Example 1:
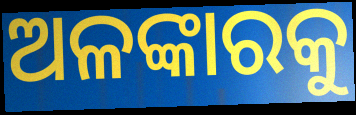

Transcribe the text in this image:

ଅଳଙ୍କାରକୁ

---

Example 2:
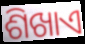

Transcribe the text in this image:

ଶିଖାଏ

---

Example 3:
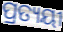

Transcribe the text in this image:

ପ୍ରତ୍ୟୟୀ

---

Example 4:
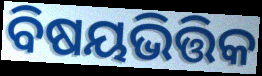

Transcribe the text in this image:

ବିଷୟଭିତ୍ତିକ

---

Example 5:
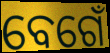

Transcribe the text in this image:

ବେଗେଁ